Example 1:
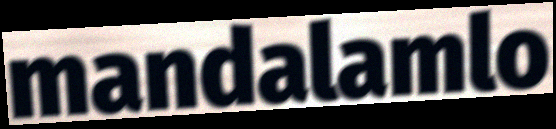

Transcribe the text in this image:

mandalamlo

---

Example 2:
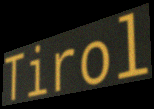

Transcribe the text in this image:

Tirol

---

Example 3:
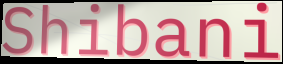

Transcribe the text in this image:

Shibani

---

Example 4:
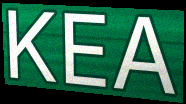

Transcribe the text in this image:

KEA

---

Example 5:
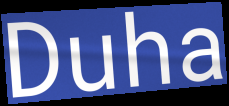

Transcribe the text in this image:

Duha